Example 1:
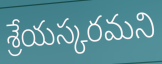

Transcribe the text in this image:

శ్రేయస్కరమని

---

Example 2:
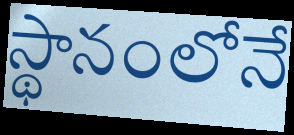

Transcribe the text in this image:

స్థానంలోనే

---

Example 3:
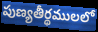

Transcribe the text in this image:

పుణ్యతీర్థములలో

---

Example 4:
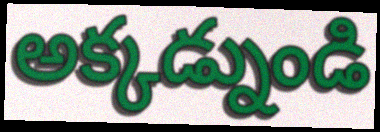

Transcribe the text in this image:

అక్కడ్నుండి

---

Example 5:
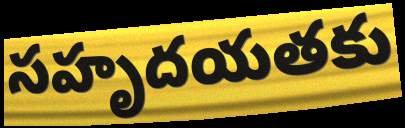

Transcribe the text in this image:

సహృదయతకు